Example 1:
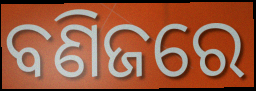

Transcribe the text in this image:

ବଣିଜରେ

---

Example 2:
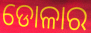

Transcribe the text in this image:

ଡୋଳାର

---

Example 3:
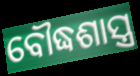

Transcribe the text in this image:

ବୌଦ୍ଧଶାସ୍ତ୍ର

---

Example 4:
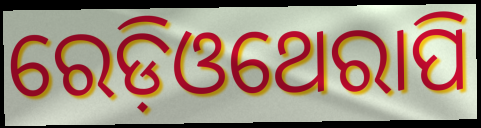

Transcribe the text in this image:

ରେଡ଼ିଓଥେରାପି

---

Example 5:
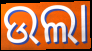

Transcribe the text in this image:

ଉଲା